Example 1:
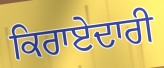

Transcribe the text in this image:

ਕਿਰਾਏਦਾਰੀ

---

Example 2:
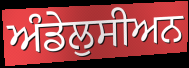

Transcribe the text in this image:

ਅੰਡੇਲੁਸੀਅਨ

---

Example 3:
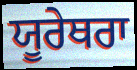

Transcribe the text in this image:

ਯੂਰੇਥਰਾ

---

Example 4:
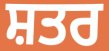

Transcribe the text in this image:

ਸ਼ਤਰ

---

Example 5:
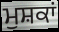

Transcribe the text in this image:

ਮੁਸ਼ਕਾਂ